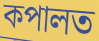
কপালত